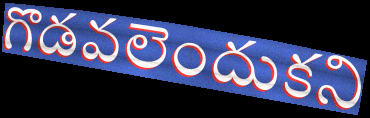
గొడవలెందుకని